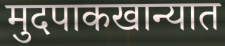
मुदपाकखान्यात